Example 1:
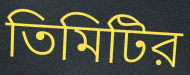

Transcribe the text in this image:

তিমিটির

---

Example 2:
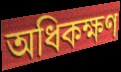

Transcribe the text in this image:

অধিকক্ষণ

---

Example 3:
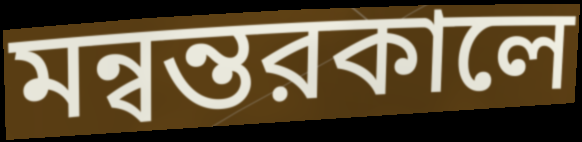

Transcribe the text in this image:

মন্বন্তরকালে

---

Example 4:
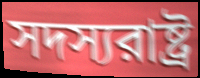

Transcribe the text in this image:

সদস্যরাষ্ট্র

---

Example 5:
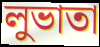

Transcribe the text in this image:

লুভাতা